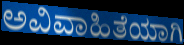
ಅವಿವಾಹಿತೆಯಾಗಿ